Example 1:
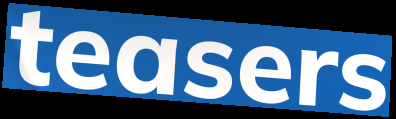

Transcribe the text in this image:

teasers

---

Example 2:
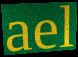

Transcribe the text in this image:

ael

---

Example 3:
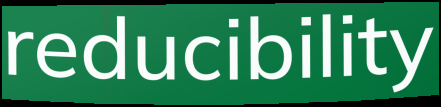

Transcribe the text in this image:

reducibility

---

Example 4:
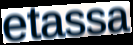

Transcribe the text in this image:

etassa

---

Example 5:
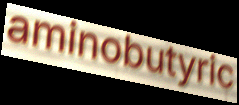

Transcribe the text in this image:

aminobutyric